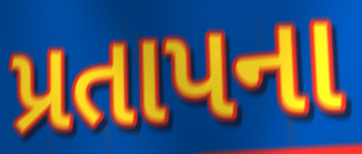
પ્રતાપના